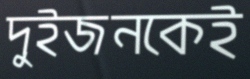
দুইজনকেই